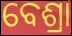
ବେଶ୍ରା